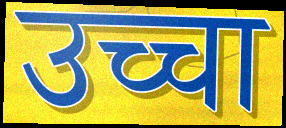
उच्चा